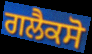
ਗਲੈਕਸੋ